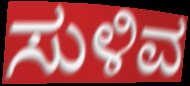
ಸುಳಿವ